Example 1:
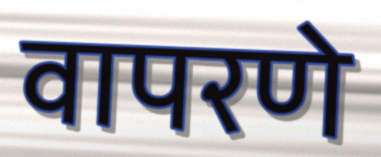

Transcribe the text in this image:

वापरणे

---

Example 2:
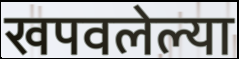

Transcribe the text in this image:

खपवलेल्या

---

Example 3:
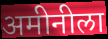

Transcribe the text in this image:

अमीनीला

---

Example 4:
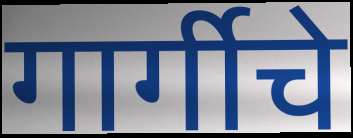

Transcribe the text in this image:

गार्गीचे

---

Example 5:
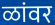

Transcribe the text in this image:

ळांवर